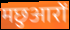
मछुआरों